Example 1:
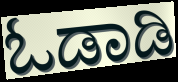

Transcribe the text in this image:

ಓಡಾಡಿ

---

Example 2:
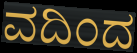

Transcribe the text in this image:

ವದಿಂದ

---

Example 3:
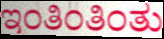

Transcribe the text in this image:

ಇಂತಿಂತಿಂತು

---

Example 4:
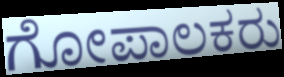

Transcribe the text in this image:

ಗೋಪಾಲಕರು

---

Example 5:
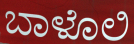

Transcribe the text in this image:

ಬಾಳೊಲಿ